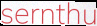
sernthu